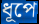
ধূপে